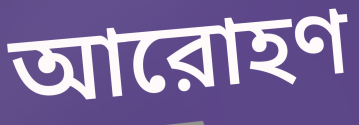
আরোহণ